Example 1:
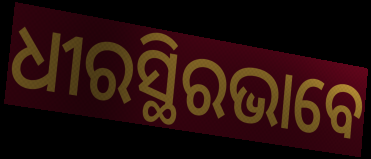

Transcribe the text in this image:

ଧୀରସ୍ଥିରଭାବେ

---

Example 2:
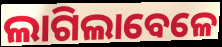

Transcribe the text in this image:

ଲାଗିଲାବେଳେ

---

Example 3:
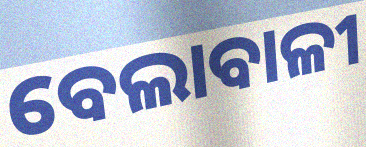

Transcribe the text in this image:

ବେଲାବାଳୀ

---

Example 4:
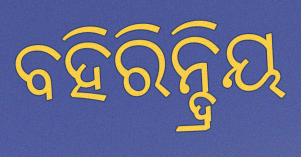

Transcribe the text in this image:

ବହିରିନ୍ଦ୍ରିୟ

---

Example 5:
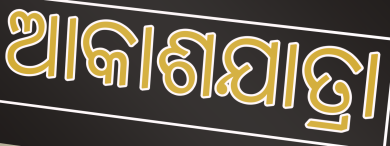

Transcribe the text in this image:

ଆକାଶଯାତ୍ରା